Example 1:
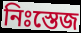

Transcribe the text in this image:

নিঃস্তেজ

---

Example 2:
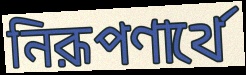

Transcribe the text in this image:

নিরূপণার্থে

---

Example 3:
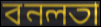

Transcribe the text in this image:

বনলতা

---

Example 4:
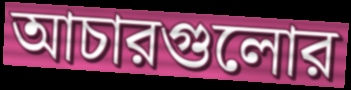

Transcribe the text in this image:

আচারগুলোর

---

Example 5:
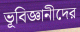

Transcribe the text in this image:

ভূবিজ্ঞানীদের